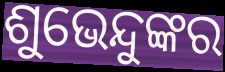
ଶୁଭେନ୍ଦୁଙ୍କର